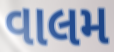
વાલમ